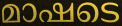
മാഷടെ